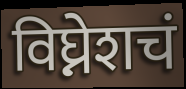
विघ्नेशचं